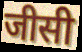
जीसी